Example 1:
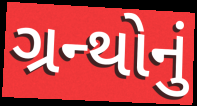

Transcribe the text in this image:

ગ્રન્થોનું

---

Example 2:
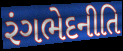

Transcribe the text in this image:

રંગભેદનીતિ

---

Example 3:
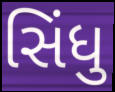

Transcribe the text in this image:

સિંધુ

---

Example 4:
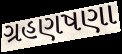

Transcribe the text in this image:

ગ્રહણષણા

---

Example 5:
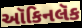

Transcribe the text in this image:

ઑકિનલૅક